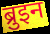
ब्रुइन